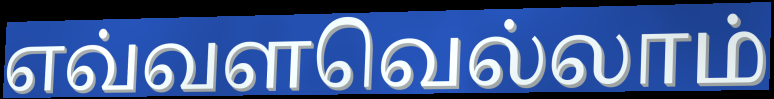
எவ்வளவெல்லாம்